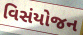
વિસંયોજન